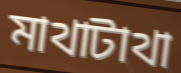
মাথাটাথা